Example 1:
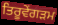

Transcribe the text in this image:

ਤਿਰੂਵੇਂਗੜਮ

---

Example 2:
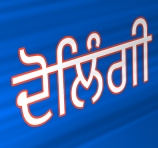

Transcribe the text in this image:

ਦੋਲਿੰਗੀ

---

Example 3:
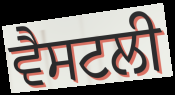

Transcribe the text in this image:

ਵੈਸਟਲੀ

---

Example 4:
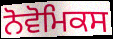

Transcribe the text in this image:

ਨੋਵੋਮਿਕਸ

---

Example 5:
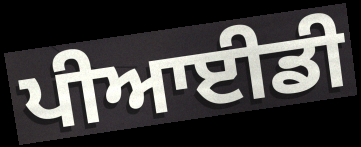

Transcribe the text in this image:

ਪੀਆਈਡੀ